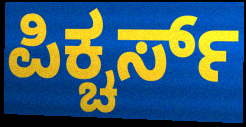
ಪಿಕ್ಚರ್ಸ್